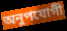
অনুপযোগী